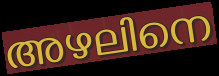
അഴലിനെ